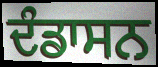
ਦੰਡਾਸਨ